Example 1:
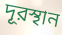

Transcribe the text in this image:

দূরস্থান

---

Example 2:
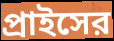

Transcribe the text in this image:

প্রাইসের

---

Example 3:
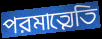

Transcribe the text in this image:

পরমাত্মেতি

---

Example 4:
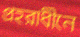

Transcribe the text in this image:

প্রহরাধীনে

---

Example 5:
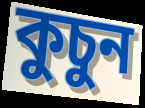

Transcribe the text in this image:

কুচুন